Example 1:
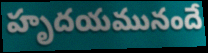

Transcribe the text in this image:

హృదయమునందే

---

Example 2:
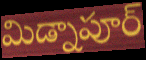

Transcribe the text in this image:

మిడ్నాపూర్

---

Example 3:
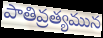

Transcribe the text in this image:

పాతివ్రత్యమున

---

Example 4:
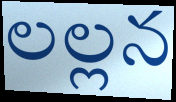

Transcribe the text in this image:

లల్లన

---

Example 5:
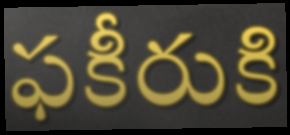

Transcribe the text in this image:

ఫకీరుకి